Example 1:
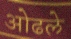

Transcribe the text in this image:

ओढले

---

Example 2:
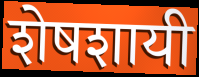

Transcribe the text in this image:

शेषशायी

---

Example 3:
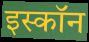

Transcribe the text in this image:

इस्कॉन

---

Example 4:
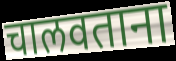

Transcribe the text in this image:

चालवताना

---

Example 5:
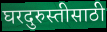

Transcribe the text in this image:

घरदुरुस्तीसाठी